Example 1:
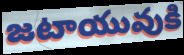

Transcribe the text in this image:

జటాయువుకి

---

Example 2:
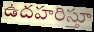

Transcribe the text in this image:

ఉదహరిస్తూ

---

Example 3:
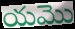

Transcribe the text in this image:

యమొ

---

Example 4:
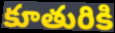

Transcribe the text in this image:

కూతురికి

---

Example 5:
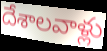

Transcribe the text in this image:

దేశాలవాళ్లు